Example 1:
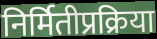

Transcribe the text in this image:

निर्मितीप्रक्रिया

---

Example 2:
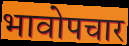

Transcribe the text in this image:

भावोपचार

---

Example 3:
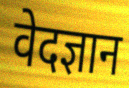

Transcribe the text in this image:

वेदज्ञान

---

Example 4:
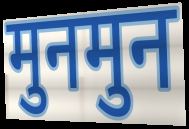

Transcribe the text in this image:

मुनमुन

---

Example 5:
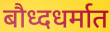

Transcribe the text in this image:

बौध्दधर्मात